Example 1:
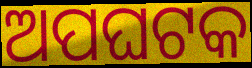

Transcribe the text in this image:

ଅପଘଟକ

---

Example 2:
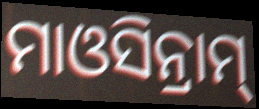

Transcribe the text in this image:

ମାଓସିନ୍ରାମ୍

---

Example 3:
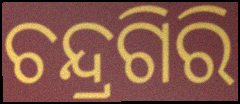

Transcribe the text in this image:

ଚନ୍ଦ୍ରଗିରି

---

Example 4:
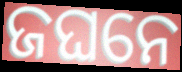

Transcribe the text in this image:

ଜଘନେ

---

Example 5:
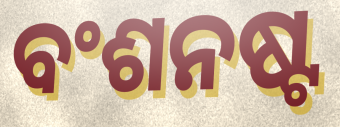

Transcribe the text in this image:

ବଂଶନଷ୍ଟ